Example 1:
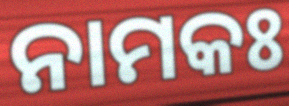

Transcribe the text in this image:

ନାମକଃ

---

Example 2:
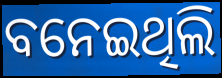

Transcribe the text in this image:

ବନେଇଥିଲି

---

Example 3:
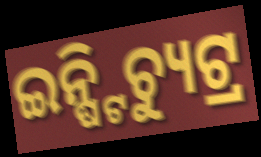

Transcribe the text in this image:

ଇନ୍ଷ୍ଟିଚ୍ୟୁଟ୍ର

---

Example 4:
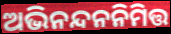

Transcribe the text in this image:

ଅଭିନନ୍ଦନନିମିତ୍ତ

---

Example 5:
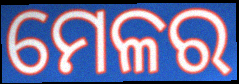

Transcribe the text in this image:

ମେଳର